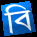
বি